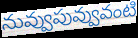
నువ్వుపువ్వువంటి